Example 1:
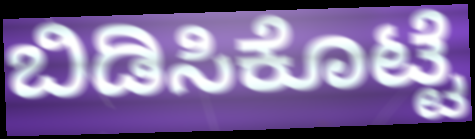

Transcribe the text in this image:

ಬಿಡಿಸಿಕೊಟ್ಟೆ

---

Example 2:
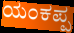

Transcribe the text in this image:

ಯಂಕಪ್ಪ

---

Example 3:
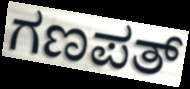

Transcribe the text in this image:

ಗಣಪತ್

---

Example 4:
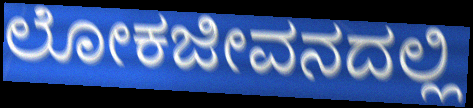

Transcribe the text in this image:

ಲೋಕಜೀವನದಲ್ಲಿ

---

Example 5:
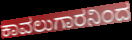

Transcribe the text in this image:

ಕಾವಲುಗಾರನಿಂದ